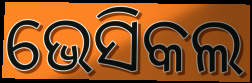
ଭେସିକଲ